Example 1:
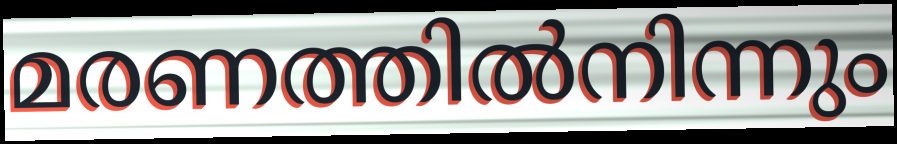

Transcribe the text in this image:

മരണത്തിൽനിന്നും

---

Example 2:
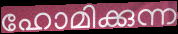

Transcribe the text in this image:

ഹോമിക്കുന്ന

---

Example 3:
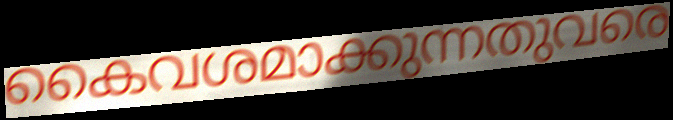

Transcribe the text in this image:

കൈവശമാക്കുന്നതുവരെ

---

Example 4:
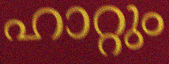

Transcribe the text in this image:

ഹാറ്റും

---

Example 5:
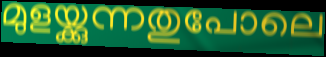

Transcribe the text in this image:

മുളയ്ക്കുന്നതുപോലെ